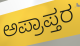
ಅಪ್ರಾಪ್ತರ